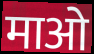
माओ